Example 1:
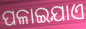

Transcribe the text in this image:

ପଳାଇଯାଏ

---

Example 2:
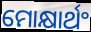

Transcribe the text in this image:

ମୋକ୍ଷାର୍ଥଂ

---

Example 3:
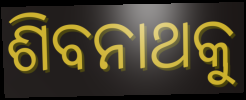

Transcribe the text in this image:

ଶିବନାଥକୁ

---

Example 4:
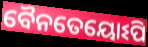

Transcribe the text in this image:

ବୈନତେୟୋଽପି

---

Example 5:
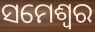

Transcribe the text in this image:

ସମେଶ୍ୱର